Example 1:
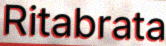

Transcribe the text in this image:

Ritabrata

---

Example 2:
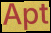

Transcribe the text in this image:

Apt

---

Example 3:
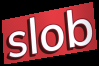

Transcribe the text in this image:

slob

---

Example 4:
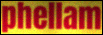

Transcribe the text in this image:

phellam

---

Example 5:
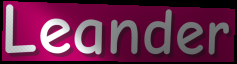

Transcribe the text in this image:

Leander